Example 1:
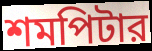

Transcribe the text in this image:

শমপিটার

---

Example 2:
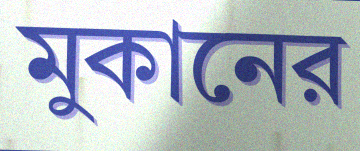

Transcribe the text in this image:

মুকানের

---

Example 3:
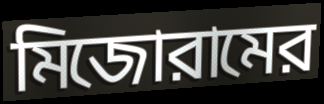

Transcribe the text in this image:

মিজোরামের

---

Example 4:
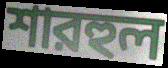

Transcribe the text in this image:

শারহুল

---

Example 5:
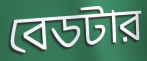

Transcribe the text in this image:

বেডটার